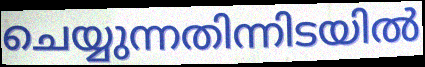
ചെയ്യുന്നതിന്നിടയിൽ